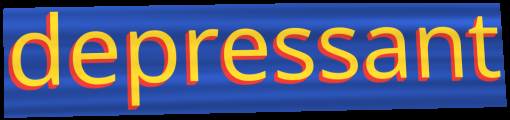
depressant